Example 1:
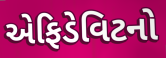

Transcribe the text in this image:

એફિડેવિટનો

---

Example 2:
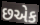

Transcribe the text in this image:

છએક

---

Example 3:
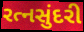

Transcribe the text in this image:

રત્નસુંદરી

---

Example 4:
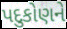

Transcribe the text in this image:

પદુકોણને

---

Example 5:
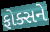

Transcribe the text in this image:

ફોક્સને